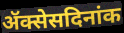
ॲक्सेसदिनांक